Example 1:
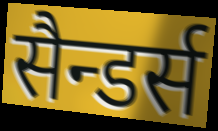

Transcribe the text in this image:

सैन्डर्स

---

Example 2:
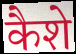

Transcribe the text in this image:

कैशे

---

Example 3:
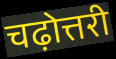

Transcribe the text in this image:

चढ़ोत्तरी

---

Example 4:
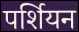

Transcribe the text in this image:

पर्शियन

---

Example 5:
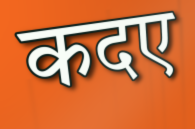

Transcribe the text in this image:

कदए